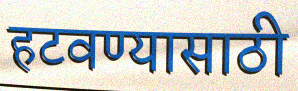
हटवण्यासाठी